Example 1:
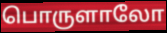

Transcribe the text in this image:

பொருளாலோ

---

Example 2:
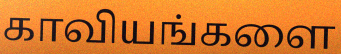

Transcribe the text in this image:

காவியங்களை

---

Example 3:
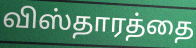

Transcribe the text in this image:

விஸ்தாரத்தை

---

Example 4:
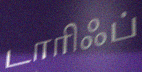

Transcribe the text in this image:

டாரிஃப்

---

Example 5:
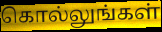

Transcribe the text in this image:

கொல்லுங்கள்